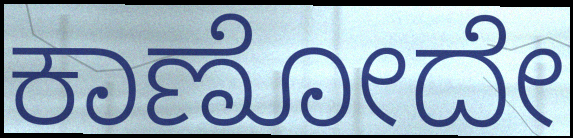
ಕಾಣೋದೇ